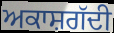
ਅਕਾਸ਼ਗੱਦੀ